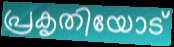
പ്രകൃതിയോട്